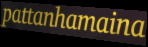
pattanhamaina